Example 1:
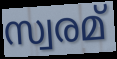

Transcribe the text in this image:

സ്വരമ്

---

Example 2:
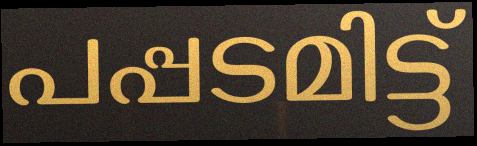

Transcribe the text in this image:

പപ്പടമിട്ട്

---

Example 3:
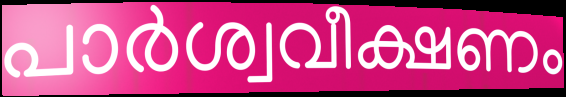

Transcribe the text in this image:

പാർശ്വവീക്ഷണം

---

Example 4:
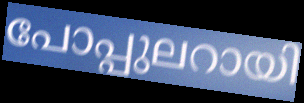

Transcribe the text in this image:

പോപ്പുലറായി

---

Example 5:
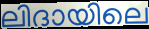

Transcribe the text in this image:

ലിദായിലെ